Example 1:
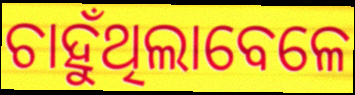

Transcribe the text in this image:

ଚାହୁଁଥିଲାବେଳେ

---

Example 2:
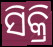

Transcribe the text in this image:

ସିକ୍ରି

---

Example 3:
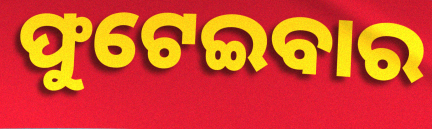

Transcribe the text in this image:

ଫୁଟେଇବାର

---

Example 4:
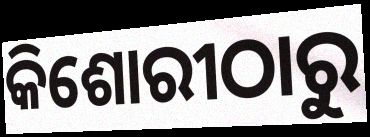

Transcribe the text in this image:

କିଶୋରୀଠାରୁ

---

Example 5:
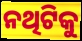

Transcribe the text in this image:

ନଥିଟିକୁ